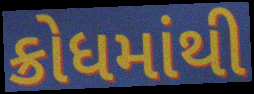
ક્રોધમાંથી